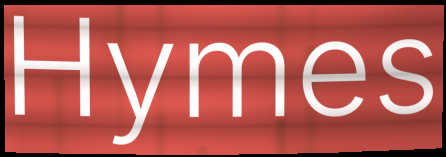
Hymes